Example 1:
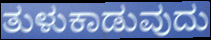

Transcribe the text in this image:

ತುಳುಕಾಡುವುದು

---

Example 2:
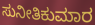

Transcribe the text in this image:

ಸುನೀತಿಕುಮಾರ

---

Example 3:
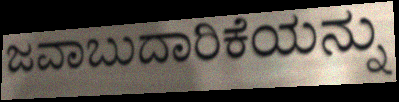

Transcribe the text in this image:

ಜವಾಬುದಾರಿಕೆಯನ್ನು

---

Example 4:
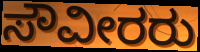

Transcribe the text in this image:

ಸೌವೀರರು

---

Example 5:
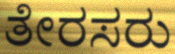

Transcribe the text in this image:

ತೇರಸರು